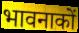
भावनाकों